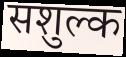
सशुल्क